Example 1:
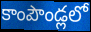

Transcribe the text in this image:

కాంపౌండ్లలో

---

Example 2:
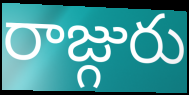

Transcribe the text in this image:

రాజ్గురు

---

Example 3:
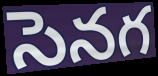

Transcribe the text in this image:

సెనగ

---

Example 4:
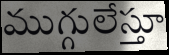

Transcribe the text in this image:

ముగ్గులేస్తూ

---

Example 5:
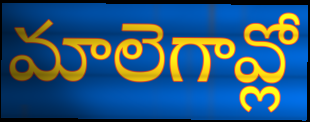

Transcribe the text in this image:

మాలెగావ్లో